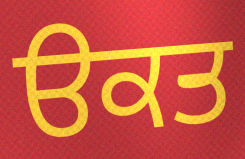
ੳਕਤ